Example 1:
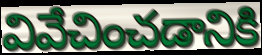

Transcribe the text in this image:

వివేచించడానికి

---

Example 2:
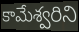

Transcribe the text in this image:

కామేశ్వరిని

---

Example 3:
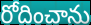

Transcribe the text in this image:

రోదించాను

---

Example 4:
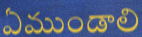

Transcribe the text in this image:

ఏముండాలి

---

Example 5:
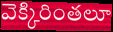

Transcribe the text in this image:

వెక్కిరింతలూ